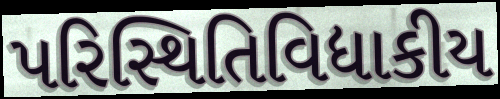
પરિસ્થિતિવિદ્યાકીય